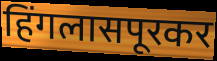
हिंगलासपूरकर